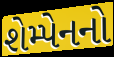
શેમ્પેનનો